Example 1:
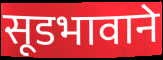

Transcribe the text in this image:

सूडभावाने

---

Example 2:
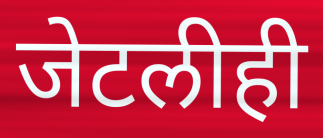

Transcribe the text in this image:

जेटलीही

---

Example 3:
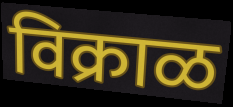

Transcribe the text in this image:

विक्राळ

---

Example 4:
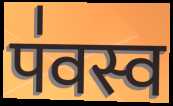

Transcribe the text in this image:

प॑वस्व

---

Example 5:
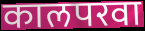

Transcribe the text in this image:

कालपरवा